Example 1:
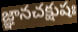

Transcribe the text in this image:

జ్ఞానచక్షుషః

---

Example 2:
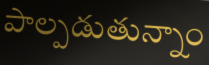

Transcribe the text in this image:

పాల్పడుతున్నాం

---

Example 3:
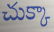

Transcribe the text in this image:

చుక్కా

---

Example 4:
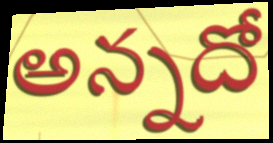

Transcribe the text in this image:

అన్నదో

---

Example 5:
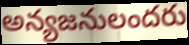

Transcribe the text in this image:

అన్యజనులందరు